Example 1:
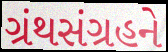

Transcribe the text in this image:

ગ્રંથસંગ્રહને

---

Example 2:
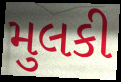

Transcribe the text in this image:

મુલકી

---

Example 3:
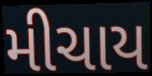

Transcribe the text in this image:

મીચાય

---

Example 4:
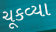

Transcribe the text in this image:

ચૂકવ્યા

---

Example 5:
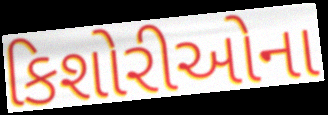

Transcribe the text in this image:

કિશોરીઓના